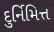
દુર્નિમિત્ત